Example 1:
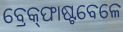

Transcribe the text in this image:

ବ୍ରେକ୍‌ଫାଷ୍ଟବେଳେ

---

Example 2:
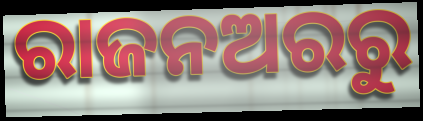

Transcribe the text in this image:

ରାଜନଅରରୁ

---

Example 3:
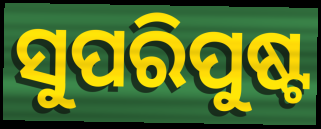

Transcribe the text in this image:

ସୁପରିପୁଷ୍ଟ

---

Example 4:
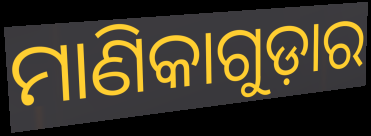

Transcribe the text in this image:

ମାଣିକାଗୁଡ଼ାର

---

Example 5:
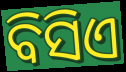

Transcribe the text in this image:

ବିସିଏ